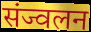
संज्वलन